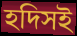
হদিসই